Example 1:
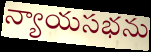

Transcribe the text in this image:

న్యాయసభను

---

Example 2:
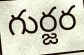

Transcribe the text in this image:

గుర్జర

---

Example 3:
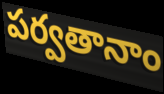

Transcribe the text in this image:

పర్వతానాం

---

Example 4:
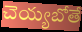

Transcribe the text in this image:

చెయ్యబోతే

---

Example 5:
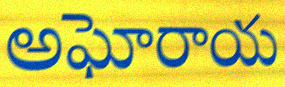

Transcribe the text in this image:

అఘోరాయ